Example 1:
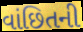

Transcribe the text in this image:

વાંછિતની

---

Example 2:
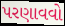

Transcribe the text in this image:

પરણાવવો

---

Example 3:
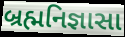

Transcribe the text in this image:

બ્રહ્મનિજ્ઞાસા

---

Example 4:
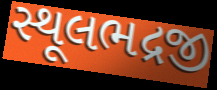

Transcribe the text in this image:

સ્થૂલભદ્રજી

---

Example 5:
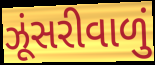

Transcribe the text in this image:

ઝૂંસરીવાળું